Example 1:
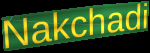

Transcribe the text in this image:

Nakchadi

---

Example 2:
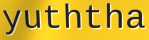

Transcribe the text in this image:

yuththa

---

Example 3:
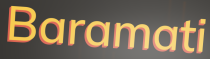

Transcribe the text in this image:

Baramati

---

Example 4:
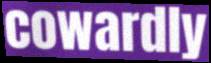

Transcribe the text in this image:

cowardly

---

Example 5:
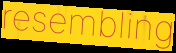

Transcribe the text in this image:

resembling